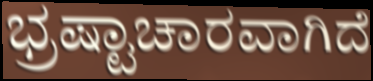
ಭ್ರಷ್ಟಾಚಾರವಾಗಿದೆ